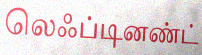
லெஃப்டினண்ட்